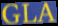
GLA